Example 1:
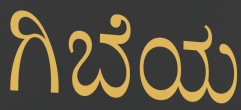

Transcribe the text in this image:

ಗಿಬೆಯ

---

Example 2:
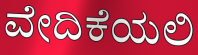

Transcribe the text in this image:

ವೇದಿಕೆಯಲಿ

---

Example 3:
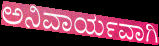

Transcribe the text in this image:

ಅನಿವಾರ್ಯವಾಗಿ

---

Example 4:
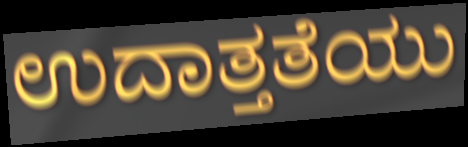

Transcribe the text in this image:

ಉದಾತ್ತತೆಯು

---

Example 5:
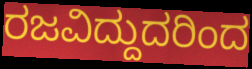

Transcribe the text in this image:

ರಜವಿದ್ದುದರಿಂದ